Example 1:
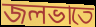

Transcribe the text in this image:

জলভাতে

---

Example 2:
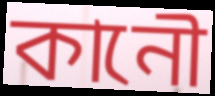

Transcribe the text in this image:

কানৌ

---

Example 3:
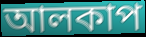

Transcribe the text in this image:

আলকাপ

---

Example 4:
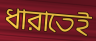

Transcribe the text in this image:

ধারাতেই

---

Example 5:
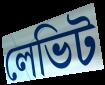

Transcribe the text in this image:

লেভিট